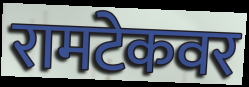
रामटेकवर